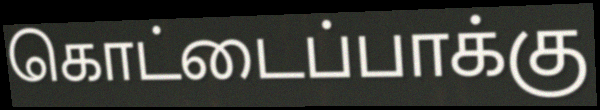
கொட்டைப்பாக்கு